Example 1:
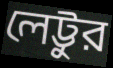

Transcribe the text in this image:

লেট্টুর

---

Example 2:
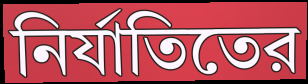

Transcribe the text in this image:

নির্যাতিতের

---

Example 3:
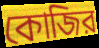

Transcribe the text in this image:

কোজির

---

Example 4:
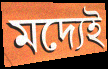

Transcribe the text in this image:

মদ্যেই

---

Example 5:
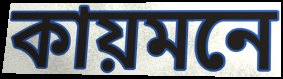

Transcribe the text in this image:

কায়মনে